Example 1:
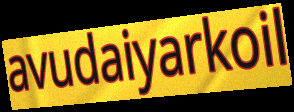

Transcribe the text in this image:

avudaiyarkoil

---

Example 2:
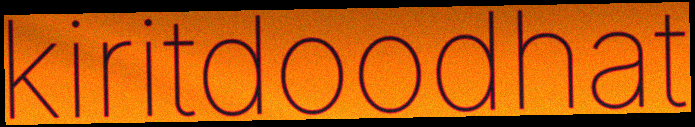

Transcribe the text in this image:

kiritdoodhat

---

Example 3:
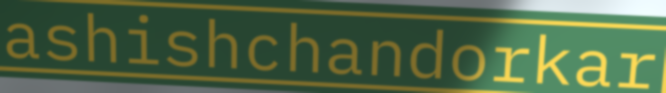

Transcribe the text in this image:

ashishchandorkar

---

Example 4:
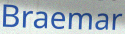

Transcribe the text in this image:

Braemar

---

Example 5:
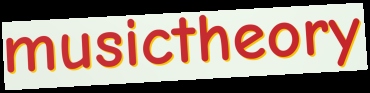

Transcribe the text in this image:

musictheory